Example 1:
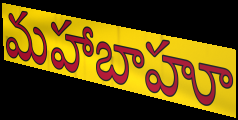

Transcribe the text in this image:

మహాబాహూ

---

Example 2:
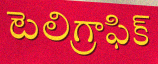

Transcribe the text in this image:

టెలిగ్రాఫిక్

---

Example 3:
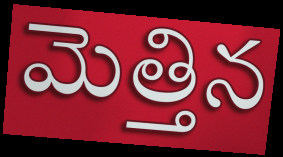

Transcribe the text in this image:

మెత్తిన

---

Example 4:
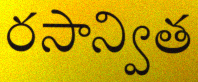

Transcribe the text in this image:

రసాన్విత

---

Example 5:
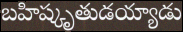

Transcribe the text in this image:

బహిష్కృతుడయ్యాడు